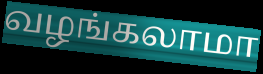
வழங்கலாமா